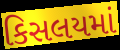
કિસલયમાં